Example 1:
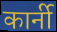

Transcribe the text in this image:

कार्नी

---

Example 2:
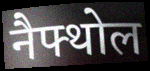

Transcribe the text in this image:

नैफ्थोल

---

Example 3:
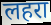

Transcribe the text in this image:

लहरा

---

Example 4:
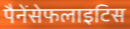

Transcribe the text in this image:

पैनेंसेफलाइटिस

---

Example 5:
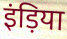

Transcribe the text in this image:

इंड़िया